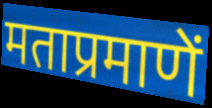
मताप्रमाणें